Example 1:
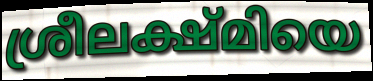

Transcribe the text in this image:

ശ്രീലക്ഷ്മിയെ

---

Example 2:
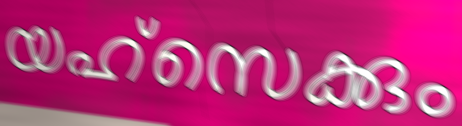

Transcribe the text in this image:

യഹ്സെക്കും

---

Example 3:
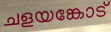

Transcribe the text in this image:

ചളയങ്കോട്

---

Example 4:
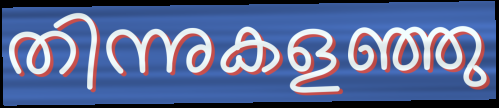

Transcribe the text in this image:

തിന്നുകളഞ്ഞു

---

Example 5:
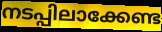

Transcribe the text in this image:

നടപ്പിലാക്കേണ്ട